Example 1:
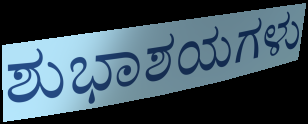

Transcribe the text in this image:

ಶುಭಾಶಯಗಳು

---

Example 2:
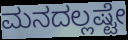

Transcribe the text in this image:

ಮನದಲ್ಲಷ್ಟೇ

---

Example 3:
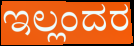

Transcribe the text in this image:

ಇಲ್ಲಂದರ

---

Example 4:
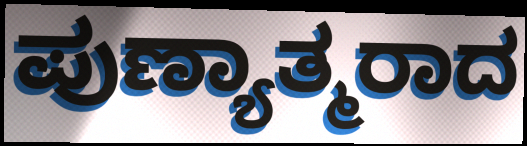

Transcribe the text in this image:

ಪುಣ್ಯಾತ್ಮರಾದ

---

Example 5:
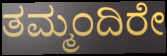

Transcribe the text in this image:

ತಮ್ಮಂದಿರೇ